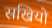
सखियो